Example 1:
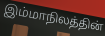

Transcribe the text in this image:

இம்மாநிலத்தின்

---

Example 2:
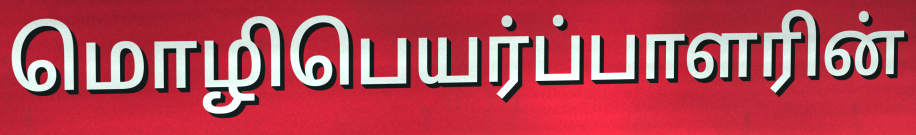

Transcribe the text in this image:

மொழிபெயர்ப்பாளரின்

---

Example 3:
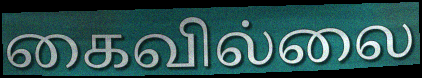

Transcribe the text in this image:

கைவில்லை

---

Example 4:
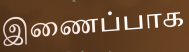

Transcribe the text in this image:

இணைப்பாக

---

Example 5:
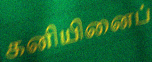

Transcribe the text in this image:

கனியினைப்